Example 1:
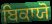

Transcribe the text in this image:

ਬਿਕਾਯੋ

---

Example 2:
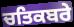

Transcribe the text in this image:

ਚਤਿਕਬਰੇ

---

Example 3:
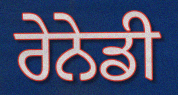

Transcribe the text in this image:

ਰੇਨੇਡੀ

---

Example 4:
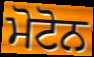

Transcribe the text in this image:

ਮੋਟੋਨ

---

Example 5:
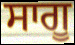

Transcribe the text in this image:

ਸਾਗੂ